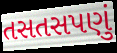
તસતસપણું